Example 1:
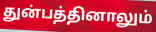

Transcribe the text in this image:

துன்பத்தினாலும்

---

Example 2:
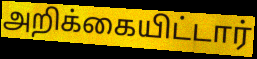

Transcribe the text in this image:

அறிக்கையிட்டார்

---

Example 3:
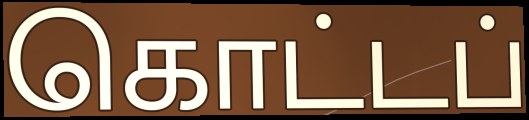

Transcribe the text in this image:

கொட்டப்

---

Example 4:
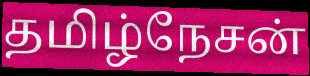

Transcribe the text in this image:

தமிழ்நேசன்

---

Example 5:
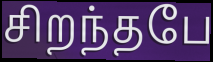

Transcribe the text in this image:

சிறந்தபே